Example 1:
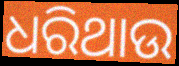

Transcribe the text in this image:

ଧରିଥାଉ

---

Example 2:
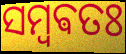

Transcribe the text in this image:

ସମ୍ବଵତଃ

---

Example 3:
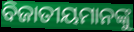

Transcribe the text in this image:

ବିଜାତୀୟମାନଙ୍କୁ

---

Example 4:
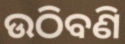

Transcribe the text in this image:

ଉଠିବଣି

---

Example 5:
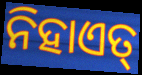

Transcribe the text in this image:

ନିହାଏତ୍